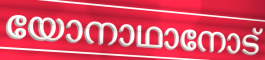
യോനാഥാനോട്